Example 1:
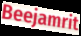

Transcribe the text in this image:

Beejamrit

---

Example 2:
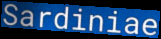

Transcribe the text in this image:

Sardiniae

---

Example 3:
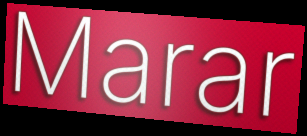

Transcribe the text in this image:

Marar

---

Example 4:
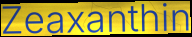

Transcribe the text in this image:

Zeaxanthin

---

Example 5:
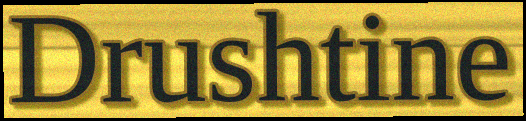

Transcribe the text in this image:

Drushtine